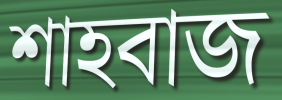
শাহবাজ